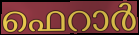
ഫെറാർ